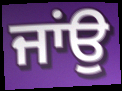
ਜਾਂਉ